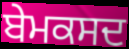
ਬੇਮਕਸਦ